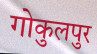
गोकुलपुर